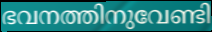
ഭവനത്തിനുവേണ്ടി